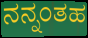
ನನ್ನಂತಹ